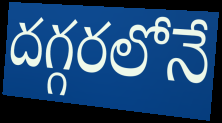
దగ్గరలోనే